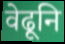
वेढूनि